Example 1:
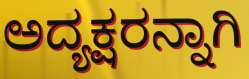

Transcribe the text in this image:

ಅದ್ಯಕ್ಷರನ್ನಾಗಿ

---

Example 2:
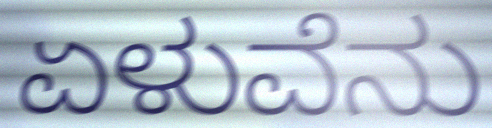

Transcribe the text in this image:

ಏಳುವೆನು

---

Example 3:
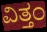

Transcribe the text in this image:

ವಿತ್ತಂ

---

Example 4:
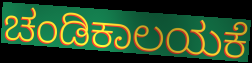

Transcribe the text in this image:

ಚಂಡಿಕಾಲಯಕೆ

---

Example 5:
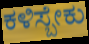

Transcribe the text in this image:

ಕಳಿಸ್ಬೇಕು